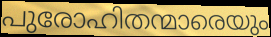
പുരോഹിതന്മാരെയും